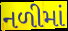
નળીમાં